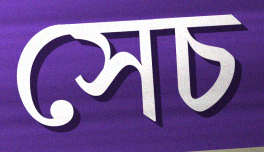
সেচ